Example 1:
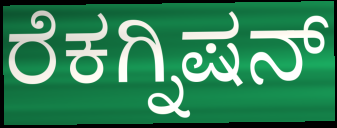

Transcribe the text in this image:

ರೆಕಗ್ನಿಷನ್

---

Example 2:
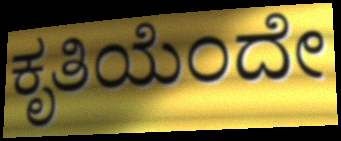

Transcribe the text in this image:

ಕೃತಿಯೆಂದೇ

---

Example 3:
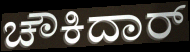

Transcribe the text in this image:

ಚೌಕಿದಾರ್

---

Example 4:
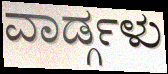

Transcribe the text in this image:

ವಾರ್ಡ್ಗಳು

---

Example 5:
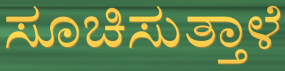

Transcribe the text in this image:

ಸೂಚಿಸುತ್ತಾಳೆ